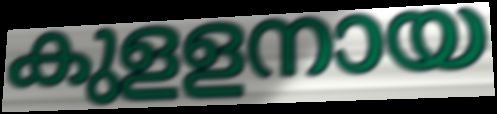
കുളളനായ